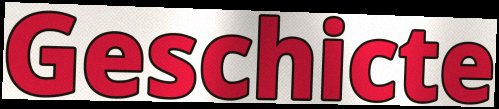
Geschicte